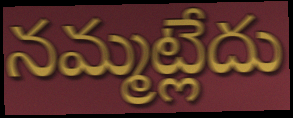
నమ్మట్లేదు